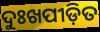
ଦୁଃଖପୀଡ଼ିତ